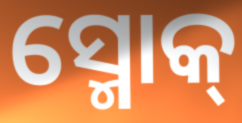
ସ୍ମୋକ୍